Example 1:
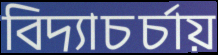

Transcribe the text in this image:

বিদ্যাচর্চায়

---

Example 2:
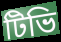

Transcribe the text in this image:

টিভি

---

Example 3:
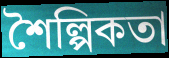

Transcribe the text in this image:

শৈল্পিকতা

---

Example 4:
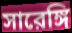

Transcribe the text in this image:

সারেঙ্গি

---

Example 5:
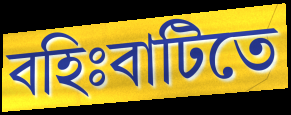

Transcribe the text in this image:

বহিঃবাটিতে